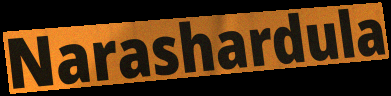
Narashardula